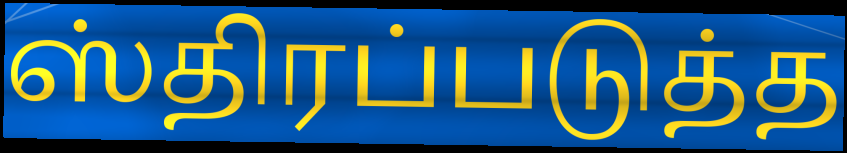
ஸ்திரப்படுத்த